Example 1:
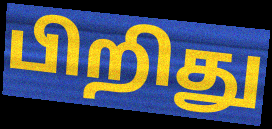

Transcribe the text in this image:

பிறிது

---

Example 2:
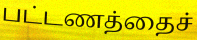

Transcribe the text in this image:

பட்டணத்தைச்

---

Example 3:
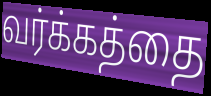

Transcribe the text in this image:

வர்க்கத்தை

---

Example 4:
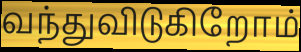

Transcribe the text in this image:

வந்துவிடுகிறோம்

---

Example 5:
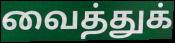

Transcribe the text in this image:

வைத்துக்